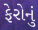
ફેરોનું